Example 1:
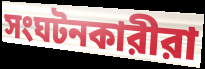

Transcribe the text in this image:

সংঘটনকারীরা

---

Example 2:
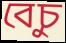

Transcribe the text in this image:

বেচু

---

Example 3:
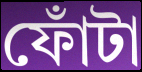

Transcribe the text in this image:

ফোঁটা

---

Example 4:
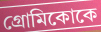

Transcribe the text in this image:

গ্রোমিকোকে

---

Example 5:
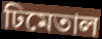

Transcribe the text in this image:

ঢিমেতাল